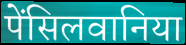
पेंसिलवानिया